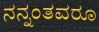
ನನ್ನಂತವರೂ